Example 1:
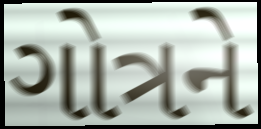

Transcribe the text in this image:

ગોત્રને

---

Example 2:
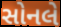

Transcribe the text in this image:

સોનલે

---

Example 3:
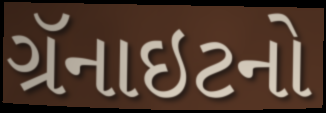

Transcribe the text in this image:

ગ્રૅનાઇટનો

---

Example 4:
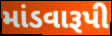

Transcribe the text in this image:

માંડવારૂપી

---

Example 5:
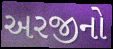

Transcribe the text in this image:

અરજીનો